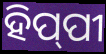
ହିପ୍‍ପୀ